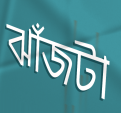
ঝাঁজটা